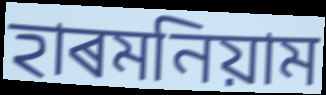
হাৰমনিয়াম